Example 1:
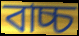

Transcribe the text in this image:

বাচ্চ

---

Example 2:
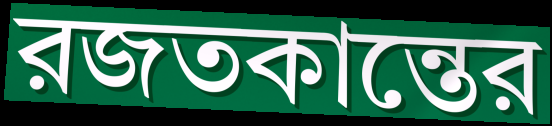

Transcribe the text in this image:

রজতকান্তের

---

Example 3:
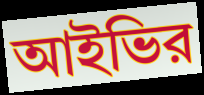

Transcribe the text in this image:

আইভির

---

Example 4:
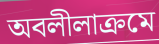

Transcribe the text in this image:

অবলীলাক্রমে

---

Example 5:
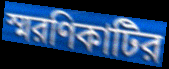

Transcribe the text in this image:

স্মরণিকাটির